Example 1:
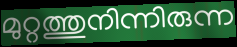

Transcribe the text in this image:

മുറ്റത്തുനിന്നിരുന്ന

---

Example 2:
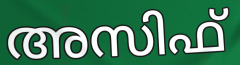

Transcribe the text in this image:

അസിഫ്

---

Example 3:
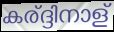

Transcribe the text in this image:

കര്ദ്ദിനാള്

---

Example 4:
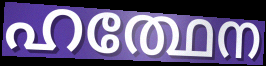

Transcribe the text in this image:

ഹത്ഥേന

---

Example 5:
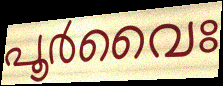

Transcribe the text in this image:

പൂർവൈഃ